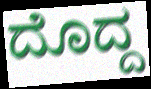
ದೊದ್ದ